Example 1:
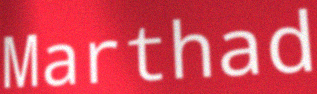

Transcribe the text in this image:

Marthad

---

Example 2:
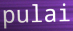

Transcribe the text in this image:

pulai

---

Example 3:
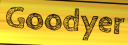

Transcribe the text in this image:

Goodyer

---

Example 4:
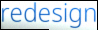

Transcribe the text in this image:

redesign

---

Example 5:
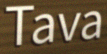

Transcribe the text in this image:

Tava